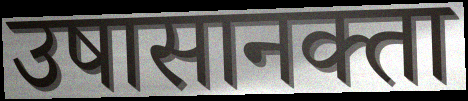
उषासानक्ता